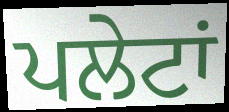
ਪਲੇਟਾਂ